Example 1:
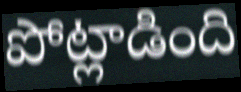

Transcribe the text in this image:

పోట్లాడింది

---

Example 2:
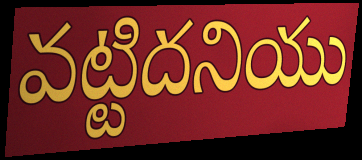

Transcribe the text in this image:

వట్టిదనియు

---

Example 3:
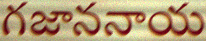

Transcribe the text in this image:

గజాననాయ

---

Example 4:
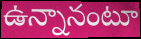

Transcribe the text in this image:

ఉన్నానంటూ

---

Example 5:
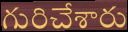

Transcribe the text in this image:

గురిచేశారు